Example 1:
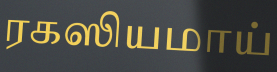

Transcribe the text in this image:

ரகஸியமாய்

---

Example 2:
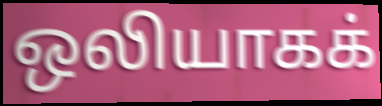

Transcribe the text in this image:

ஒலியாகக்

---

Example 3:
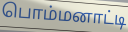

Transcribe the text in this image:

பொம்மனாட்டி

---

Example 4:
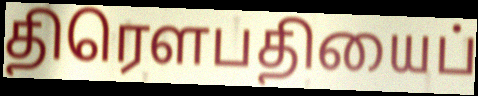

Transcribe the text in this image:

திரெளபதியைப்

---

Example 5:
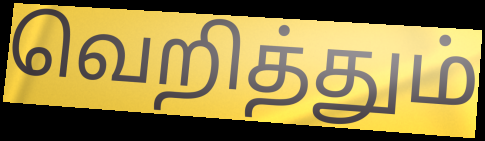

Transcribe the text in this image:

வெறித்தும்